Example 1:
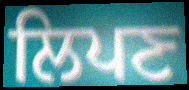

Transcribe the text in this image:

ਲਿਪਣ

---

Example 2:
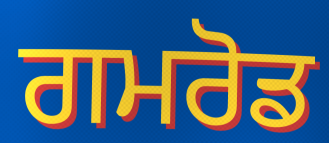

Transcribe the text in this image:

ਗਮਰੋਡ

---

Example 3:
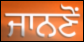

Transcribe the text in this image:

ਜਾਨਣੋਂ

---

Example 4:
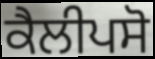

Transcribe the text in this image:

ਕੈਲੀਪਸੋ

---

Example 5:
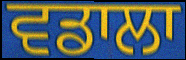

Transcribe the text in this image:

ਵਡਾਲਾ